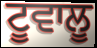
ਟੂਵਾਲੂ